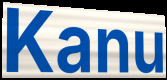
Kanu